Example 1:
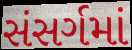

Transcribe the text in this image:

સંસર્ગમાં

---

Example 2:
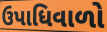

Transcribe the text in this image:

ઉપાધિવાળો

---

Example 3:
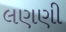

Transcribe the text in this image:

લણણી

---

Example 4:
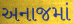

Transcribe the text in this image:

અનાજમાં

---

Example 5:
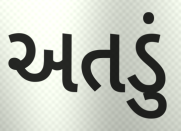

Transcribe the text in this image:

અતડું